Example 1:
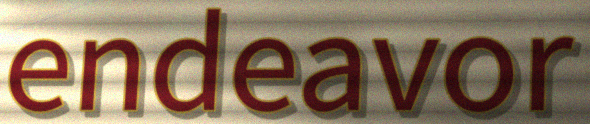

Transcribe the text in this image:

endeavor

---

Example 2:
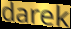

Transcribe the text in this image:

darek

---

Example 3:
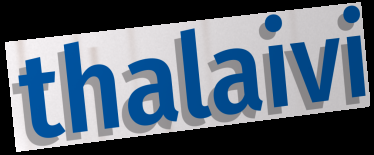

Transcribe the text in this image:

thalaivi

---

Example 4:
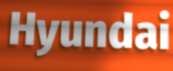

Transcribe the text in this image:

Hyundai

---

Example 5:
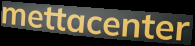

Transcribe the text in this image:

mettacenter